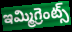
ఇమ్మిగ్రెంట్స్